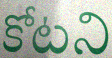
కోటని